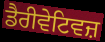
ਡੈਰੀਵੇਟਿਵਜ਼